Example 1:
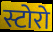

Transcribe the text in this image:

स्टोरो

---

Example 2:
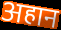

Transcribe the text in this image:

अहान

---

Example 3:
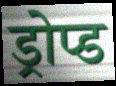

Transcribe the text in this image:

ड्रोप्ड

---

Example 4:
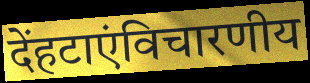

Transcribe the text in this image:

देंहटाएंविचारणीय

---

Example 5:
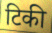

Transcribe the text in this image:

टिकी